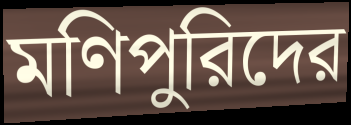
মণিপুরিদের